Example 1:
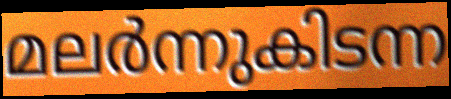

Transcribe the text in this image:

മലർന്നുകിടന്ന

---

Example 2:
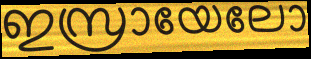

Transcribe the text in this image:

ഇസ്രായേലോ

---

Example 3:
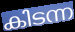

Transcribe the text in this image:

കിടന്ന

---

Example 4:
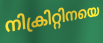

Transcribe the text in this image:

നിക്രിറ്റിനയെ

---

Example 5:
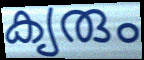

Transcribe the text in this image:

ക്യരും